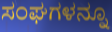
ಸಂಘಗಳನ್ನೂ